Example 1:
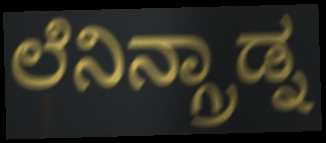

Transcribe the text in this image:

ಲೆನಿನ್ಗ್ರಾಡ್ನ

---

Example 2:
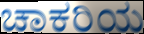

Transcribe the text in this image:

ಚಾಕರಿಯ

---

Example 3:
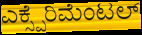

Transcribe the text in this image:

ಎಕ್ಸ್ಪೆರಿಮೆಂಟಲ್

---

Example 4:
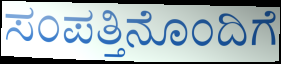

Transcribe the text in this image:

ಸಂಪತ್ತಿನೊಂದಿಗೆ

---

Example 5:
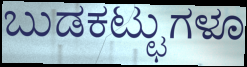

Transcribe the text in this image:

ಬುಡಕಟ್ಟುಗಳೂ